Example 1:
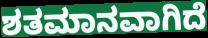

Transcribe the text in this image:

ಶತಮಾನವಾಗಿದೆ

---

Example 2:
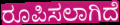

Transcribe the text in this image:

ರೂಪಿಸಲಾಗಿದೆ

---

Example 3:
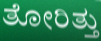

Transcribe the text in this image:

ತೋರಿತ್ತು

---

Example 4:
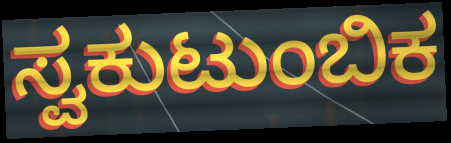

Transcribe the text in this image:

ಸ್ವಕುಟುಂಬಿಕ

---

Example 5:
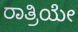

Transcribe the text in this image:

ರಾತ್ರಿಯೇ